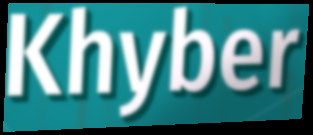
Khyber